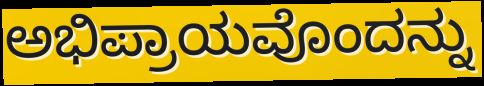
ಅಭಿಪ್ರಾಯವೊಂದನ್ನು